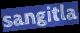
sangitla